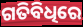
ଗତିବିଧିରେ